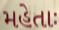
મહેતાઃ